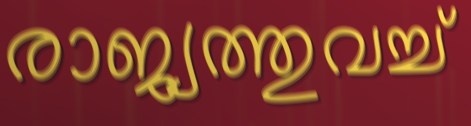
രാജ്യത്തുവച്ച്